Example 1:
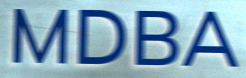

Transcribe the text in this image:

MDBA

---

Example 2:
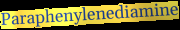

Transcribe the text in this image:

Paraphenylenediamine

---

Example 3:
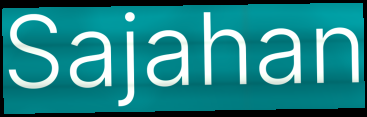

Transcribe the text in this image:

Sajahan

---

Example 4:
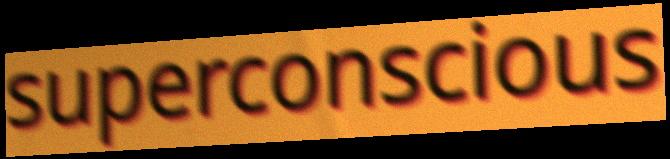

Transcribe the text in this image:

superconscious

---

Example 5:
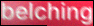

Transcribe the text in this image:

belching